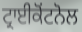
ਟ੍ਰਾਈਕੋਂਟਨੋਲ